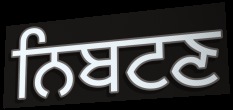
ਨਿਬਟਣ